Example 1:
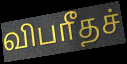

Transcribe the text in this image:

விபரீதச்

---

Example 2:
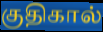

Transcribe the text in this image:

குதிகால்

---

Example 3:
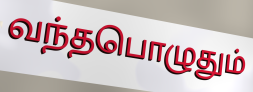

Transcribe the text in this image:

வந்தபொழுதும்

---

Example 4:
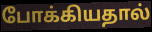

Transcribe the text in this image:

போக்கியதால்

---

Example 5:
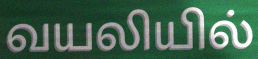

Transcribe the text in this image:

வயலியில்